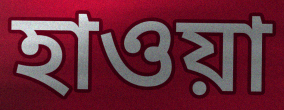
হাওয়া